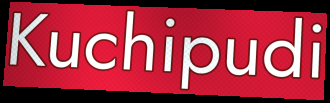
Kuchipudi